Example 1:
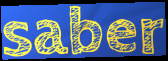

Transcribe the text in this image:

saber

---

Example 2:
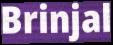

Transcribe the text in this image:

Brinjal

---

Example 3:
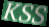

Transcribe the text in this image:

KSS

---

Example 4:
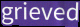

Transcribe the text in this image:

grieved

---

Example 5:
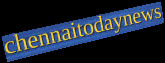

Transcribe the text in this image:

chennaitodaynews